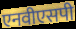
एनवीएसपी